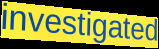
investigated